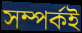
সম্পৰ্কই